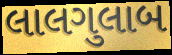
લાલગુલાબ